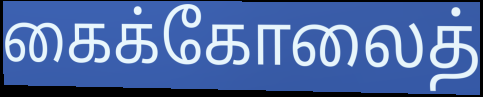
கைக்கோலைத்